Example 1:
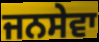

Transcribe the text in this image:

ਜਨਸੇਵਾ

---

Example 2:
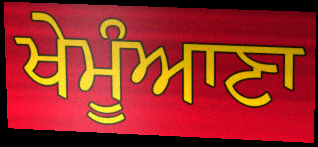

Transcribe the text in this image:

ਖੇਮੂੰਆਣਾ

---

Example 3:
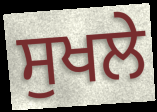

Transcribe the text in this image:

ਸੁਖਲੇ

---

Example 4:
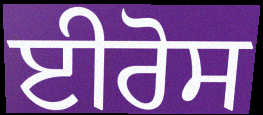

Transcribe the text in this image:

ਈਰੋਸ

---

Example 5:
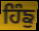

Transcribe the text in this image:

ਹਿੰਙੁ